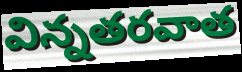
విన్నతరవాత